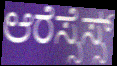
ಆರೆಸ್ಸೆಸ್ಸ್